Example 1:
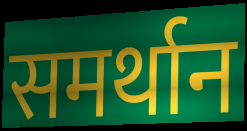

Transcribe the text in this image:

समर्थान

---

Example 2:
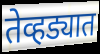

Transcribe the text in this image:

तेव्हड्यात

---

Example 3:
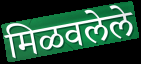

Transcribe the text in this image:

मिळवलेले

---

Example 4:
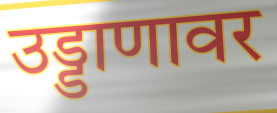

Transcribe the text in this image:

उड्डाणावर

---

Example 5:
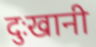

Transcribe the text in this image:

दुःखानी